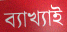
ব্যাখ্যাই